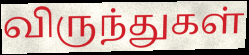
விருந்துகள்